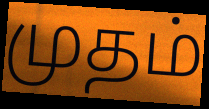
முதம்